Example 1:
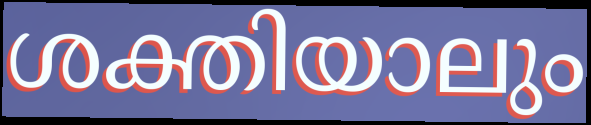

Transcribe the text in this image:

ശക്തിയാലും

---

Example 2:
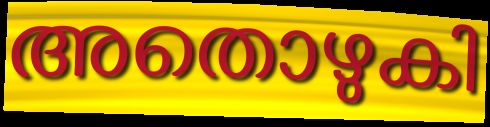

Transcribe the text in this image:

അതൊഴുകി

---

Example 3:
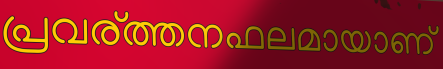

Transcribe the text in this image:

പ്രവര്ത്തനഫലമായാണ്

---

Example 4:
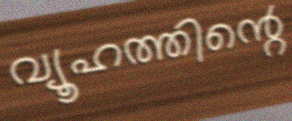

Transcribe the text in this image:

വ്യൂഹത്തിന്റെ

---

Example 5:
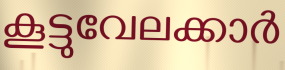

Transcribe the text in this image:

കൂട്ടുവേലക്കാർ